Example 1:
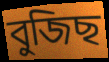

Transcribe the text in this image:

বুজিছ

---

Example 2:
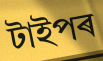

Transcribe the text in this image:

টাইপৰ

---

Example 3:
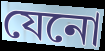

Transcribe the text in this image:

যেনো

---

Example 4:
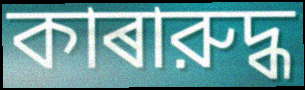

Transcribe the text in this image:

কাৰাৰুদ্ধ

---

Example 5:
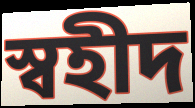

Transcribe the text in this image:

স্বহীদ